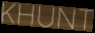
KHUNT